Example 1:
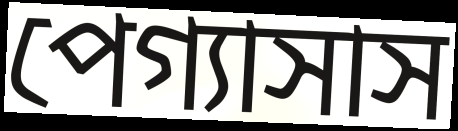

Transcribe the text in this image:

পেগ্যাসাস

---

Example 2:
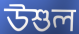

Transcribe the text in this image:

উশুল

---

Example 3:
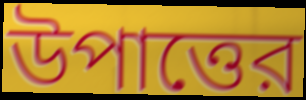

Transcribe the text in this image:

উপাত্তের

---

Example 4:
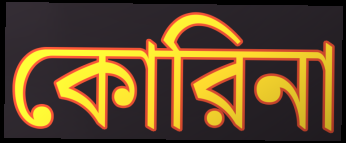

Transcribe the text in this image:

কোরিনা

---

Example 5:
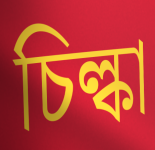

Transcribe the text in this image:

চিল্কা